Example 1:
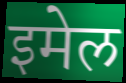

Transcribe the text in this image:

इमेल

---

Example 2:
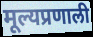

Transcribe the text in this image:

मूल्यप्रणाली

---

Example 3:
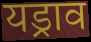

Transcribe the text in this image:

यड्राव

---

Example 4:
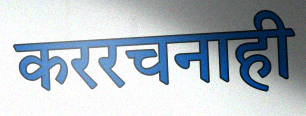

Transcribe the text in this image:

कररचनाही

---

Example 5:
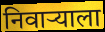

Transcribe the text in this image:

निवाऱ्याला